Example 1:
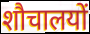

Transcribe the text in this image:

शौचालयों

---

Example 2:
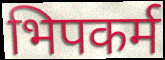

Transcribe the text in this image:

भिपकर्म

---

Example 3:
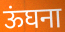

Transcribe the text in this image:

ऊंघना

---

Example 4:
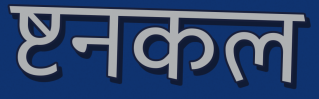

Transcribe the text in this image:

ष्टनकल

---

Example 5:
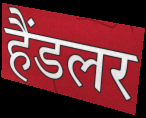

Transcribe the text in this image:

हैंडलर